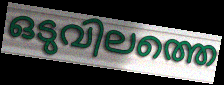
ഒടുവിലത്തെ